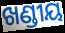
ଖଣ୍ଡୀୟ